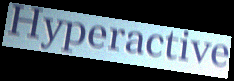
Hyperactive